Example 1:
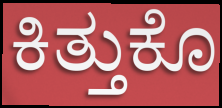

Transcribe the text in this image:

ಕಿತ್ತುಕೊ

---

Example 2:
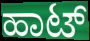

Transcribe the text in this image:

ಹಾಟ್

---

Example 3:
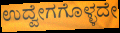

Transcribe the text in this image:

ಉದ್ವೇಗಗೊಳ್ಳದೇ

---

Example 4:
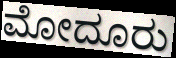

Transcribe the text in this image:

ಮೋದೂರು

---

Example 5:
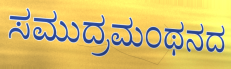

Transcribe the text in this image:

ಸಮುದ್ರಮಂಥನದ